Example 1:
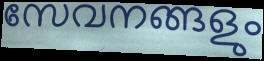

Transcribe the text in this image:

സേവനങ്ങളും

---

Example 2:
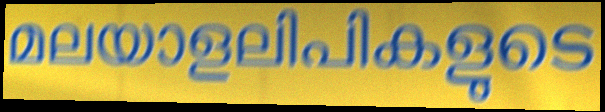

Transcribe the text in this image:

മലയാളലിപികളുടെ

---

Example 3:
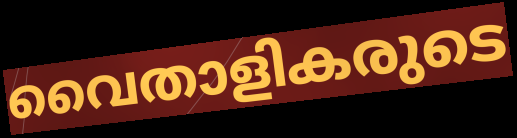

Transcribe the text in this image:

വൈതാളികരുടെ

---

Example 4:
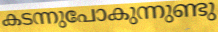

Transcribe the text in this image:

കടന്നുപോകുന്നുണ്ടു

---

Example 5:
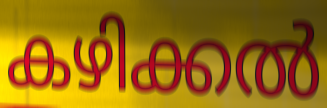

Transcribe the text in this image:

കഴിക്കൽ